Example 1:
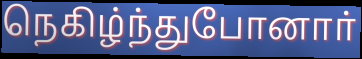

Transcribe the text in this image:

நெகிழ்ந்துபோனார்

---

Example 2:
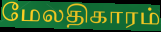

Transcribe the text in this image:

மேலதிகாரம்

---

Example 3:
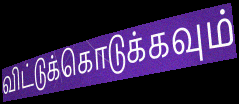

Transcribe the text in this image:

விட்டுக்கொடுக்கவும்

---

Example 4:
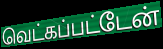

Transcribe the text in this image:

வெட்கப்பட்டேன்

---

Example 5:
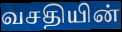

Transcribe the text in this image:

வசதியின்